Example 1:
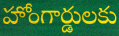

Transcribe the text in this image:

హోంగార్డులకు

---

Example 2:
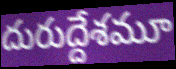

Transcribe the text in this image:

దురుద్దేశమూ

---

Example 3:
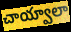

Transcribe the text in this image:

చాయ్వాలా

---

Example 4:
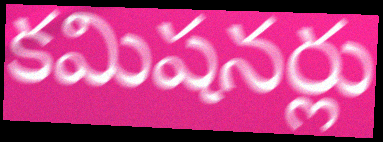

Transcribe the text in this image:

కమిషనర్లు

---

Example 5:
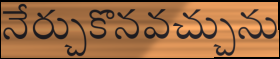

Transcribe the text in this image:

నేర్చుకొనవచ్చును